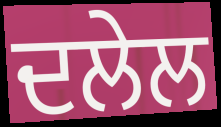
ਦਲੇਲ